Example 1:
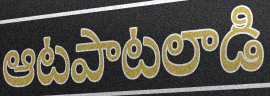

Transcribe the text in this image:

ఆటపాటలాడి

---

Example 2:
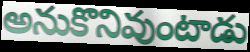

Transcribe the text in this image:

అనుకొనివుంటాడు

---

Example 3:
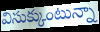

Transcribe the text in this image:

విసుక్కుంటున్నా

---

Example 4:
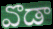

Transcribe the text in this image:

వొడా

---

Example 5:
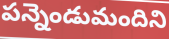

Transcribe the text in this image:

పన్నెండుమందిని